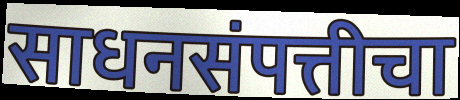
साधनसंपत्तीचा